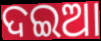
ଦଇଆ